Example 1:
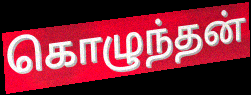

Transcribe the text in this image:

கொழுந்தன்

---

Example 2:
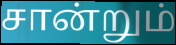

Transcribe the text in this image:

சான்றும்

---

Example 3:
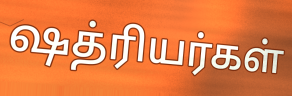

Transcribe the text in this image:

ஷத்ரியர்கள்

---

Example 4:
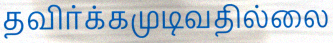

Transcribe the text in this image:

தவிர்க்கமுடிவதில்லை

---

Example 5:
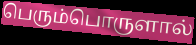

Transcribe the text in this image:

பெரும்பொருளால்